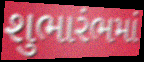
શુભારંભમાં